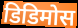
डिडिमोस